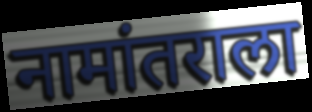
नामांतराला